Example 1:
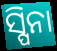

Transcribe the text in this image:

ସ୍ପିନା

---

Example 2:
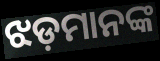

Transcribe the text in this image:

ଝଡ଼ମାନଙ୍କ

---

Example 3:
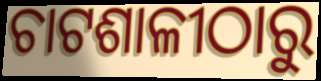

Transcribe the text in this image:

ଚାଟଶାଳୀଠାରୁ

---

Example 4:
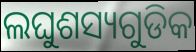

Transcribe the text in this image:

ଲଘୁଶସ୍ୟଗୁଡିକ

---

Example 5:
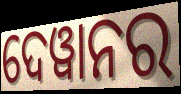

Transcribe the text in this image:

ଦେୱାନର